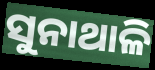
ସୁନାଥାଳି